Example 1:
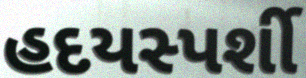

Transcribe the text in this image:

હદયસ્પર્શી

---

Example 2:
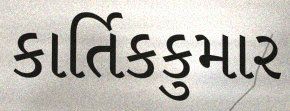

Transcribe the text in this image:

કાર્તિકકુમાર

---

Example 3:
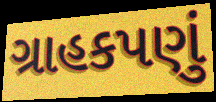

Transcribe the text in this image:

ગ્રાહકપણું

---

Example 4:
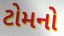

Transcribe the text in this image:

ટોમનો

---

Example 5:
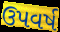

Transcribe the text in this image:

ઉપવર્ષ